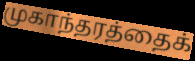
முகாந்தரத்தைக்